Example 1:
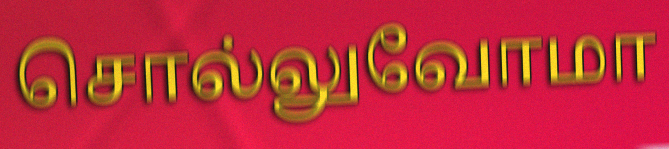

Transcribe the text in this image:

சொல்லுவோமா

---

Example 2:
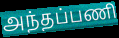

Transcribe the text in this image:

அந்தப்பணி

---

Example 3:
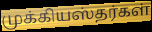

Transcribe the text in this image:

முக்கியஸ்தர்கள்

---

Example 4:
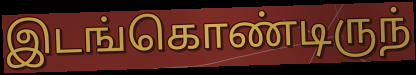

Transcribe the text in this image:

இடங்கொண்டிருந்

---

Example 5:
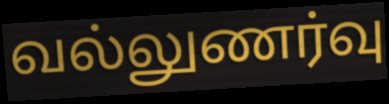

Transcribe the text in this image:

வல்லுணர்வு